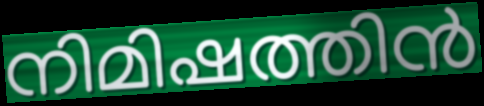
നിമിഷത്തിൻ